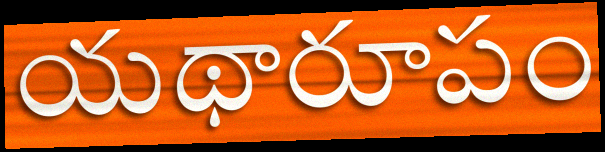
యథారూపం